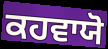
ਕਹਵਾਯੋ